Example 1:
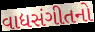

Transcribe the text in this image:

વાદ્યસંગીતનો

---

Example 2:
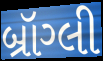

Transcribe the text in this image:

બ્રૉગ્લી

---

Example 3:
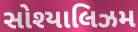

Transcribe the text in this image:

સોશ્યાલિઝમ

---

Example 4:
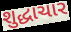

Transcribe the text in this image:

શુદ્ધાચાર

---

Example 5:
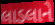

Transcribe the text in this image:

લાડલાને